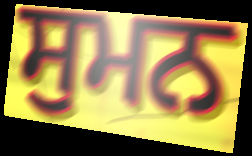
ਸੁਮਨ